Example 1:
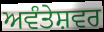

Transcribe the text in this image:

ਅਵੰਤੇਸ਼ਵਰ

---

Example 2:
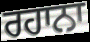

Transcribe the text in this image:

ਰਹਾਨਾ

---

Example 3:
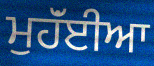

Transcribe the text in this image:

ਮੁਹੱਂਈਆ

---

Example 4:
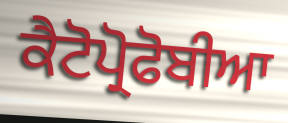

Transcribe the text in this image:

ਕੈਟੋਪ੍ਰੋਫੋਬੀਆ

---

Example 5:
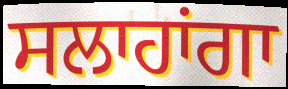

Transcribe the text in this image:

ਸਲਾਹਾਂਗਾ